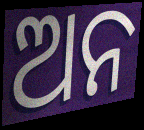
ଅନ